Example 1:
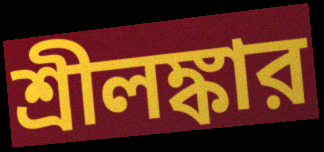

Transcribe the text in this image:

শ্রীলঙ্কার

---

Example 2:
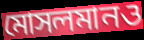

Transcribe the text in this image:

মোসলমানও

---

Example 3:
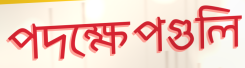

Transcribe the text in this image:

পদক্ষেপগুলি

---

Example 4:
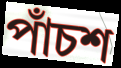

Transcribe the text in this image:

পাঁচশ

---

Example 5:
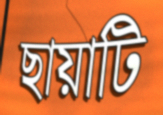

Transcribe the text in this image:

ছায়াটি